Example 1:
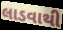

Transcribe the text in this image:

લાડવાથી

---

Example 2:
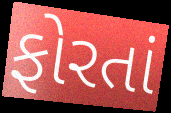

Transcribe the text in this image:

ફોરતાં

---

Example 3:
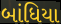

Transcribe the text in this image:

બાંધિયા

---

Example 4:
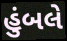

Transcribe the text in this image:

હુંબલે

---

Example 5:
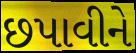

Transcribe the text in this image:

છપાવીને